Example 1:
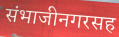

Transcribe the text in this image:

संभाजीनगरसह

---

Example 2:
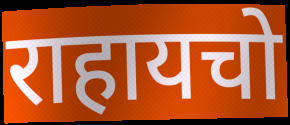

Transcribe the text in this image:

राहायचो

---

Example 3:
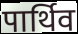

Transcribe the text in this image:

पार्थिव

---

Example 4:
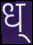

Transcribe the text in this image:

ध्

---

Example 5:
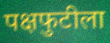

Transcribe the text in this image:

पक्षफुटीला